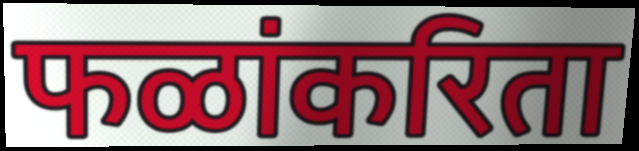
फळांकरिता